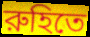
রুহিতে